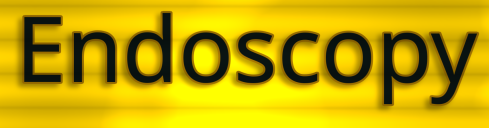
Endoscopy